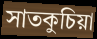
সাতকুচিয়া